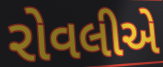
રોવલીએ